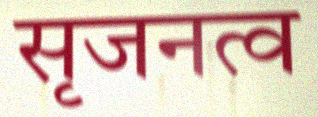
सृजनत्व